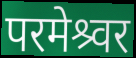
परमेश्र्वर